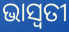
ଭାସ୍ଵତୀ